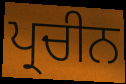
ਪ੍ਰਚੀਨ